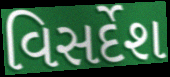
વિસર્દેશ